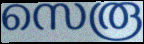
സെരൂ